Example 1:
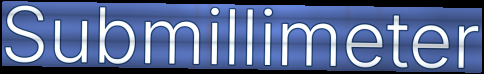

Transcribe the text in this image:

Submillimeter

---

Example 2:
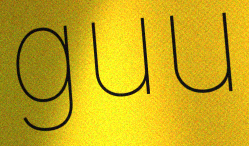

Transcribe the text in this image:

guu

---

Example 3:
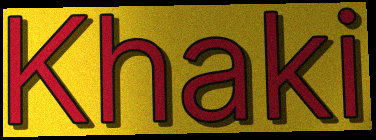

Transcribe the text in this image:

Khaki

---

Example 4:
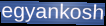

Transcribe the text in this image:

egyankosh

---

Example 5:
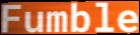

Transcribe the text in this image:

Fumble